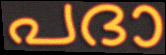
പദാ